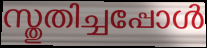
സ്തുതിച്ചപ്പോൾ